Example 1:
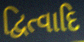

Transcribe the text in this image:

દ્વિત્વાદિ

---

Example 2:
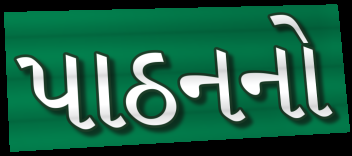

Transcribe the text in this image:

પાઠનનો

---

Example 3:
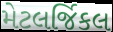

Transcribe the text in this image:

મેટલર્જિકલ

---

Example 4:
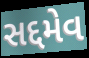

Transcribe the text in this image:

સદ્દમેવ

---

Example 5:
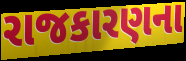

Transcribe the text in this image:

રાજકારણના